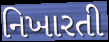
નિખારતી